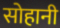
सोहानी